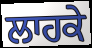
ਲਾਹਕੇ